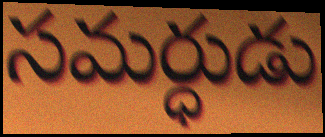
సమర్ధుడు